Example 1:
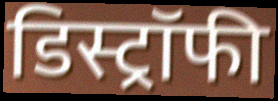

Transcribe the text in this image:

डिस्ट्रॉफी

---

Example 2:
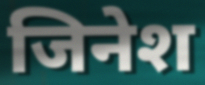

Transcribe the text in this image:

जिनेश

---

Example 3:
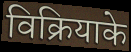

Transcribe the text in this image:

विक्रियाके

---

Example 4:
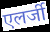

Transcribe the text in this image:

एलर्जी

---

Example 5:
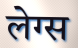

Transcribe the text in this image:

लेग्स